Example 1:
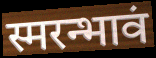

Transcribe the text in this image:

स्मरन्भावं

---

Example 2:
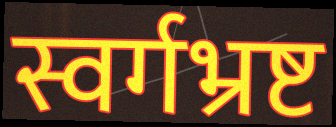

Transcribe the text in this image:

स्वर्गभ्रष्ट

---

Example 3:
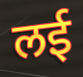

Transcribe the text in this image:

लई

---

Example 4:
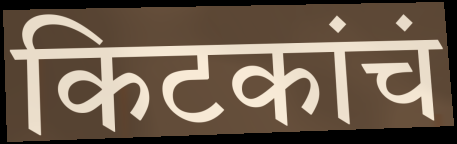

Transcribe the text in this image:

किटकांचं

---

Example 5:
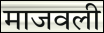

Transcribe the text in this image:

माजवली